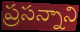
ప్రసన్నాని